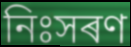
নিঃসৰণ